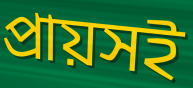
প্রায়সই